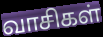
வாசிகள்